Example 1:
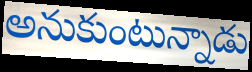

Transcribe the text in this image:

అనుకుంటున్నాడు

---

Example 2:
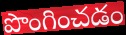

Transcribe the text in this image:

పొంగించడం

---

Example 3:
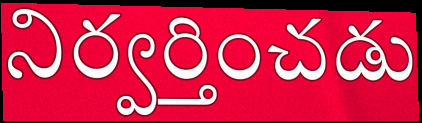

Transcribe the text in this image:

నిర్వర్తించడు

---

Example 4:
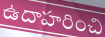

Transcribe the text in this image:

ఉదాహరించి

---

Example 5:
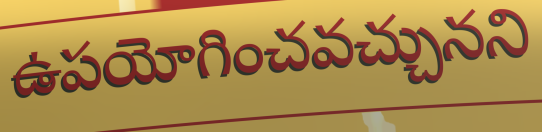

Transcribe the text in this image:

ఉపయోగించవచ్చునని